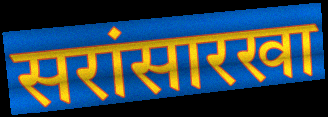
सरांसारखा